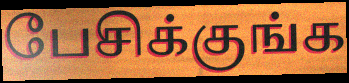
பேசிக்குங்க